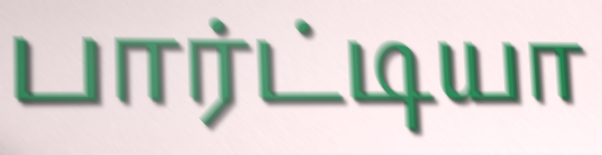
பார்ட்டியா